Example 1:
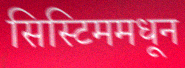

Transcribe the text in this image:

सिस्टिममधून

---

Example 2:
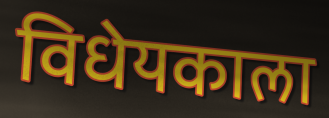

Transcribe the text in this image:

विधेयकाला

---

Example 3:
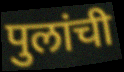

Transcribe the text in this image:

पुलांची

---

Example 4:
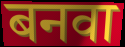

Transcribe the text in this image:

बनवा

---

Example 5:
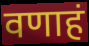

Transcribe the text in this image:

वणाहं